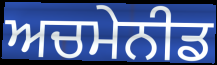
ਅਚਮੇਨੀਡ